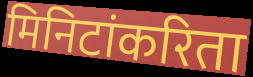
मिनिटांकरिता